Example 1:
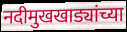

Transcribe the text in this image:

नदीमुखखाड्यांच्या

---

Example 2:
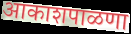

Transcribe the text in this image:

आकाशपाळणा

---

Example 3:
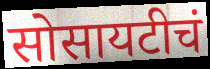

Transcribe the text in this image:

सोसायटीचं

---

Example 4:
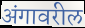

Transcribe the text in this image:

अंगावरील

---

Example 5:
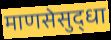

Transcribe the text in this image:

माणसेसुद्धा